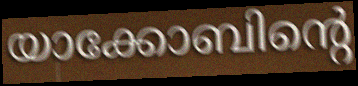
യാക്കോബിന്റെ